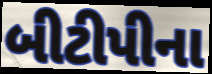
બીટીપીના